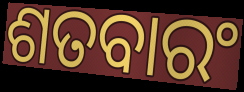
ଶତବାରଂ